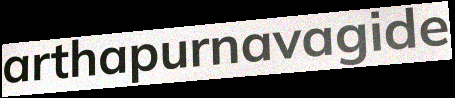
arthapurnavagide